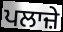
ਪਲਾਜ਼ੇ